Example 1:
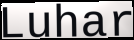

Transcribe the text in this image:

Luhar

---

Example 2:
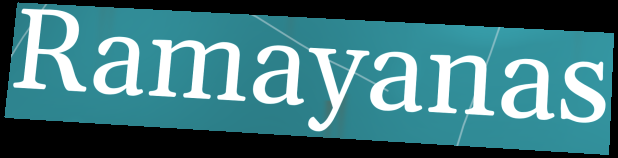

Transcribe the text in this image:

Ramayanas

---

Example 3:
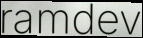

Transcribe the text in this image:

ramdev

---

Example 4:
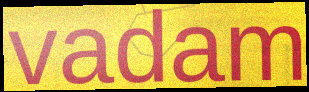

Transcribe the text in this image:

vadam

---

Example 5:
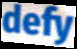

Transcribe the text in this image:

defy